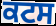
ਕਟਸ